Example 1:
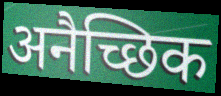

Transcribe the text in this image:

अनैच्छिक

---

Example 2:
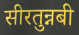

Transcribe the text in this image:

सीरतुन्नबी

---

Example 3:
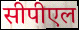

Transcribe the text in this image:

सीपीएल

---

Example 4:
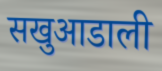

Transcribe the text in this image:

सखुआडाली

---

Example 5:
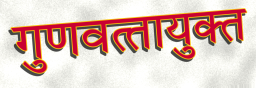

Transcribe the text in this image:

गुणवत्‍तायुक्‍त